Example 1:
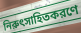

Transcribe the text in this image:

নিরুৎসাহিতকরণে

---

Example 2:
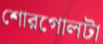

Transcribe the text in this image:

শোরগোলটা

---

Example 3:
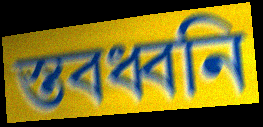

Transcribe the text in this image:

স্তবধ্বনি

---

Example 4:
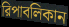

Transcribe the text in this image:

রিপাবলিকান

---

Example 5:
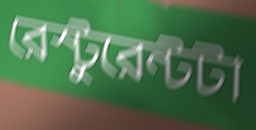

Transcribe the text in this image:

রেস্টুরেন্টটা